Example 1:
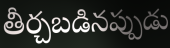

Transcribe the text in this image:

తీర్చబడినప్పుడు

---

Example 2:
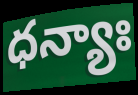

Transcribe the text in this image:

ధన్యాః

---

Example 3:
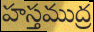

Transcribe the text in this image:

హస్తముద్ర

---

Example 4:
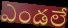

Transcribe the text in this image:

ఎండలే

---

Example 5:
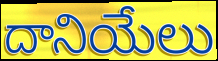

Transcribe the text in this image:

దానియేలు